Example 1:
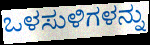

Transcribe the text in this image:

ಒಳಸುಳಿಗಳನ್ನು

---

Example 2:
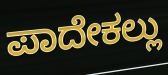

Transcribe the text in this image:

ಪಾದೇಕಲ್ಲು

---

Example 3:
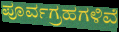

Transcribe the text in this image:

ಪೂರ್ವಗ್ರಹಗಳಿವೆ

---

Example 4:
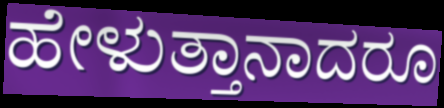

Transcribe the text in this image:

ಹೇಳುತ್ತಾನಾದರೂ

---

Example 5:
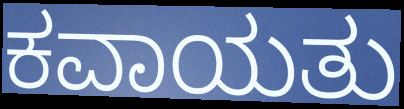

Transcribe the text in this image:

ಕವಾಯತು